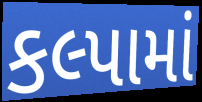
કલ્પામાં